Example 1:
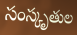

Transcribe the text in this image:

సంస్కృతుల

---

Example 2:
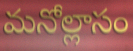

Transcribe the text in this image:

మనోల్లాసం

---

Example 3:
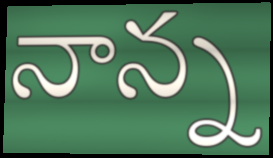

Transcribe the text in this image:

నాన్న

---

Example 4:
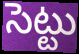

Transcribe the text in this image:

సెట్టు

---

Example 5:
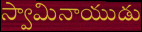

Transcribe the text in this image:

స్వామినాయుడు